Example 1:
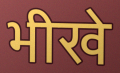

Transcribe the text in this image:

भीखे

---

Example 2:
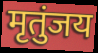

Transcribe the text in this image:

मृतुंजय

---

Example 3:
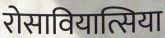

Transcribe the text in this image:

रोसावियात्सिया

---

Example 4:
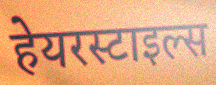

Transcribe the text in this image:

हेयरस्टाइल्स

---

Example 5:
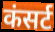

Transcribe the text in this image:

कंसर्ट